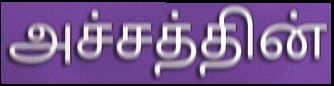
அச்சத்தின்